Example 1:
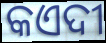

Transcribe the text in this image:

କଏଦୀ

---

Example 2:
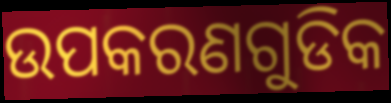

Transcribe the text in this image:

ଉପକରଣଗୁଡିକ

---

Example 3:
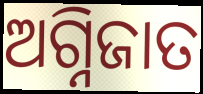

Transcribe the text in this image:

ଅଗ୍ନିଜାତ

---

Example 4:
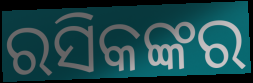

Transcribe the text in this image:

ରସିକଙ୍କର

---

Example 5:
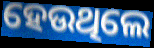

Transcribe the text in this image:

ହେଉଥିଲେ